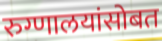
रुग्णालयांसोबत